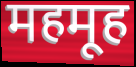
महमूह